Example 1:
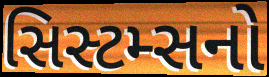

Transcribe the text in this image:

સિસ્ટમ્સનો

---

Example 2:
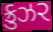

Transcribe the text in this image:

ક્રુઝર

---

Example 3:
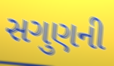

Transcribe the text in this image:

સગુણની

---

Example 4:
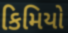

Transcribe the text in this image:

કિમિયો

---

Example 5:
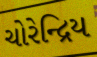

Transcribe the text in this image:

ચોરેન્દ્રિય